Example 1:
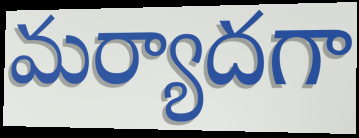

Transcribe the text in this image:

మర్యాదగా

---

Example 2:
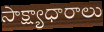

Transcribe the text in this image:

సాక్ష్యాధారాలు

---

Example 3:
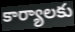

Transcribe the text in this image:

కార్యాలకు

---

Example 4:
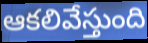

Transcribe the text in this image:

ఆకలివేస్తుంది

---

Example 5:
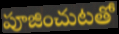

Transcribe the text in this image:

పూజించుటతో